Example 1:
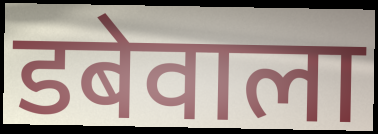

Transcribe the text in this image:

डबेवाला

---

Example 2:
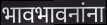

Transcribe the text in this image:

भावभावनांना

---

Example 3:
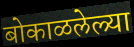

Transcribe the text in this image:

बोकाळलेल्या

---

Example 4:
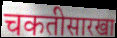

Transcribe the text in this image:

चकतीसारखा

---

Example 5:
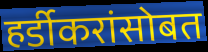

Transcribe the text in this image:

हर्डीकरांसोबत